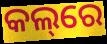
କଲ୍‌ରେ